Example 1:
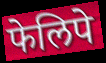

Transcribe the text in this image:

फेलिपे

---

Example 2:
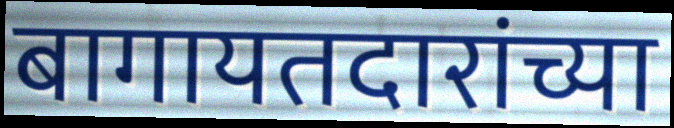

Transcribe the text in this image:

बागायतदारांच्या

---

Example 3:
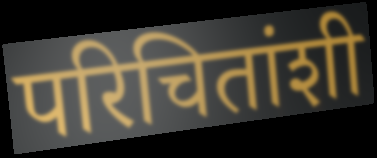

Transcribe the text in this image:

परिचितांशी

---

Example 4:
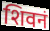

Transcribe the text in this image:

शिवनं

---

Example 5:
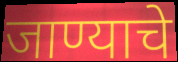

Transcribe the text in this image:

जाण्याचे